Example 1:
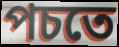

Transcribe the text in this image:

পচতে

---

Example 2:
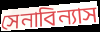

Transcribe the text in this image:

সেনাবিন্যাস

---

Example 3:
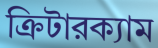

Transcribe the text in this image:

ক্রিটারক্যাম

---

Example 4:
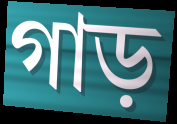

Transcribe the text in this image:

গাড়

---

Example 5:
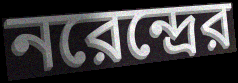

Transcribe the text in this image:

নরেন্দ্রের